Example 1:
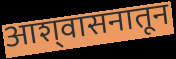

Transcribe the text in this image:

आश्वासनातून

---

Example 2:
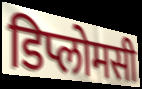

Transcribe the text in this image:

डिप्लोमसी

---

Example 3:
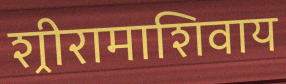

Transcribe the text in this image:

श्रीरामाशिवाय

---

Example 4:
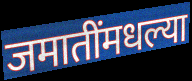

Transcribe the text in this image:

जमातींमधल्या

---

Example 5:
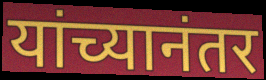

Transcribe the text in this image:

यांच्यानंतर